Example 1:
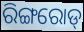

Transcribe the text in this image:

ରିଙ୍ଗରୋଡ୍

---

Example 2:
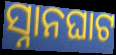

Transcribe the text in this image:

ସ୍ନାନଘାଟ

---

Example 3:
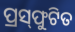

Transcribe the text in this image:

ପ୍ରସ୍‌ଫୁଟିତ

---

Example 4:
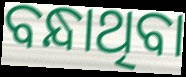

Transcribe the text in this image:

ବନ୍ଧାଥିବା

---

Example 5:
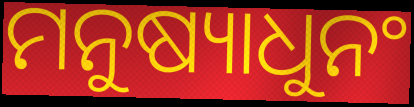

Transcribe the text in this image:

ମନୁଷ୍ୟାଧୁନଂ